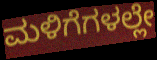
ಮಳಿಗೆಗಳಲ್ಲೇ